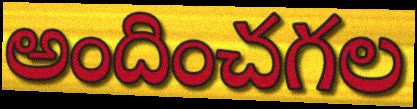
అందించగల